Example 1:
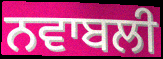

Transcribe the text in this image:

ਨਵਾਬਲੀ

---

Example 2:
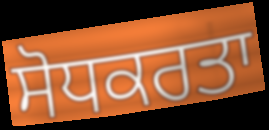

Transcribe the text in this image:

ਸੋਧਕਰਤਾ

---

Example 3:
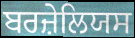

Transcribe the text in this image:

ਬਰਜ਼ੇਲਿਯਸ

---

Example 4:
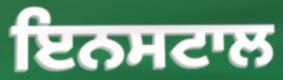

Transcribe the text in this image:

ਇਨਸਟਾਲ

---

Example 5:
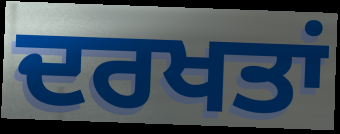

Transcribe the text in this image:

ਦਰਖਤਾਂ